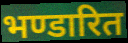
भण्डारित